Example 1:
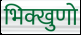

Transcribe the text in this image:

भिक्खुणो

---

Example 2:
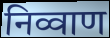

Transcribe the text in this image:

निव्वाण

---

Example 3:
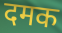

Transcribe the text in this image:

दमक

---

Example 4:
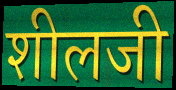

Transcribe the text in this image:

शीलजी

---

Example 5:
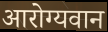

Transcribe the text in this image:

आरोग्यवान